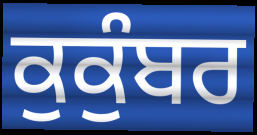
ਕੁਕੁੰਬਰ